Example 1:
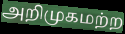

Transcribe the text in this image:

அறிமுகமற்ற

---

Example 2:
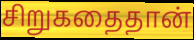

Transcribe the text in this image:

சிறுகதைதான்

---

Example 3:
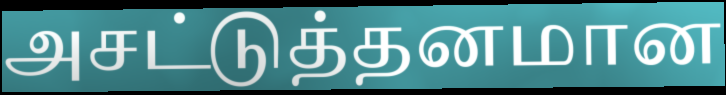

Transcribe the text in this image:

அசட்டுத்தனமான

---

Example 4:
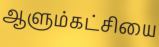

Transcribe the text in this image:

ஆளும்கட்சியை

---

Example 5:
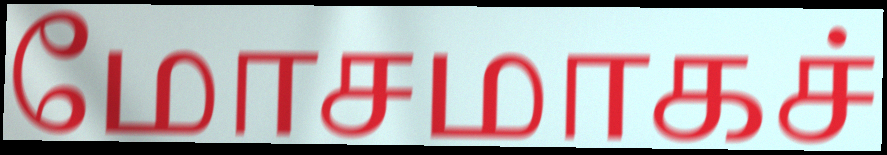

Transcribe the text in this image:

மோசமாகச்